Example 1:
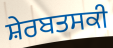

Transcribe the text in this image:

ਸ਼ੇਰਬਤਸਕੀ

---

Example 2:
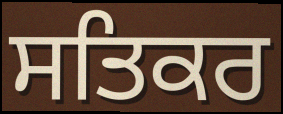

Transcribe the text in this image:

ਸਤਿਕਰ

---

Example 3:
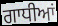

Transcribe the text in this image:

ਗਾਧੀਆਂ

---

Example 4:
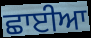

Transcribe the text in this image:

ਛਾਈਆ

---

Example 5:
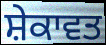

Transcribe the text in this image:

ਸ਼ੇਕਾਵਤ